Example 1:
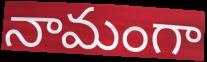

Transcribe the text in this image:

నామంగా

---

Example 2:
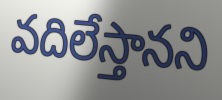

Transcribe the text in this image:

వదిలేస్తానని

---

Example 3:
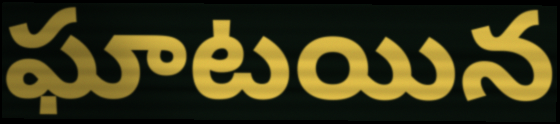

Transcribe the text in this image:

ఘాటయిన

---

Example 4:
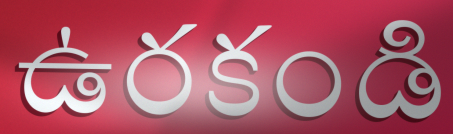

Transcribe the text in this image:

ఉరకండి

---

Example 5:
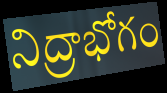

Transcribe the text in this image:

నిద్రాభోగం